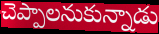
చెప్పాలనుకున్నాడు